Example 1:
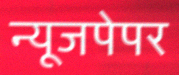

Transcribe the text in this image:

न्यूजपेपर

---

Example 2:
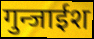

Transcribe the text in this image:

गुन्जाईश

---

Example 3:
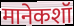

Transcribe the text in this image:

मानेकशॉ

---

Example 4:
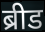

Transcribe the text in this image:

ब्रीड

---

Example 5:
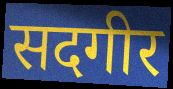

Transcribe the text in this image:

सदगीर